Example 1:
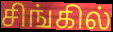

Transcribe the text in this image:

சிங்கில்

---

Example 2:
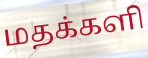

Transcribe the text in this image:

மதக்களி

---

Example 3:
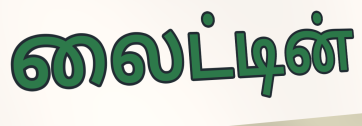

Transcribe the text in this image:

லைட்டின்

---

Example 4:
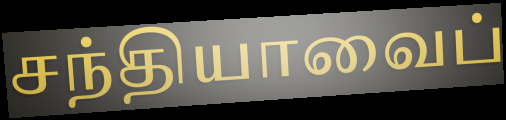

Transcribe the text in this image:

சந்தியாவைப்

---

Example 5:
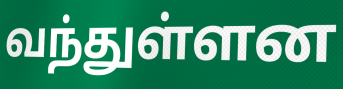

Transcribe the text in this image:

வந்துள்ளன